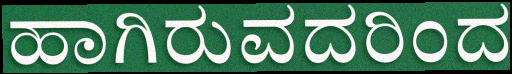
ಹಾಗಿರುವದರಿಂದ